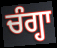
ਚੰਗ੍ਹਾ